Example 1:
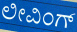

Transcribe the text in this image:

ಲೀವಿಂಗ್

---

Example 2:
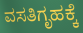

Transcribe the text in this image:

ವಸತಿಗೃಹಕ್ಕೆ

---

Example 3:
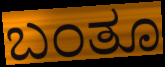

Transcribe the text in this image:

ಬಂತೂ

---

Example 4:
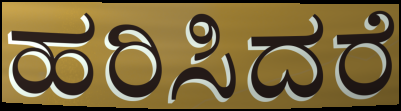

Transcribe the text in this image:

ಹರಿಸಿದರೆ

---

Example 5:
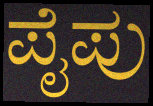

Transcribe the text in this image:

ಪೈಪು